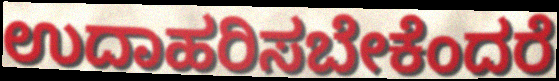
ಉದಾಹರಿಸಬೇಕೆಂದರೆ